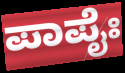
ಪಾಪೈಃ